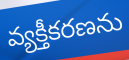
వ్యక్తీకరణను